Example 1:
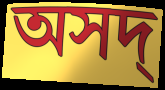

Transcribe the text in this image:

অসদ্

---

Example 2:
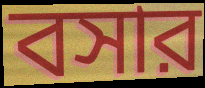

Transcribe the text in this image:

বসার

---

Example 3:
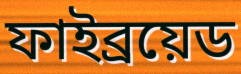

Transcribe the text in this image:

ফাইব্রয়েড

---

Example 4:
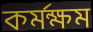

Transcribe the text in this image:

কর্মক্ষম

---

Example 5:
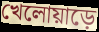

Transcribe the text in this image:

খেলোয়াড়ে